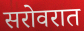
सरोवरात